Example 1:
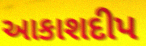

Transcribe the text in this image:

આકાશદીપ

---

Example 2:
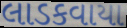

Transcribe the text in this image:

લાડકવાયા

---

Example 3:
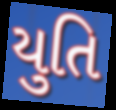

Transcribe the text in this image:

યુતિ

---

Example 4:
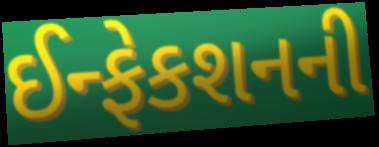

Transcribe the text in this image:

ઈન્ફેકશનની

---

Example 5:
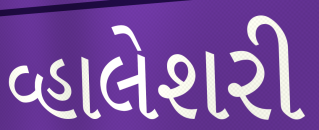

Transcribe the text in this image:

વ્હાલેશરી